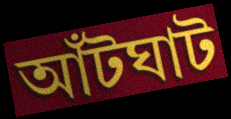
আঁটঘাট